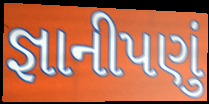
જ્ઞાનીપણું